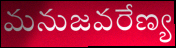
మనుజవరేణ్య